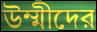
উম্মীদের